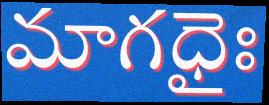
మాగధైః